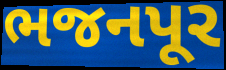
ભજનપૂર